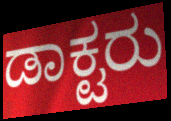
ಡಾಕ್ಟರು